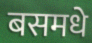
बसमधे